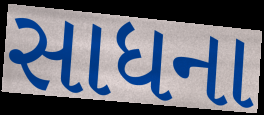
સાધના